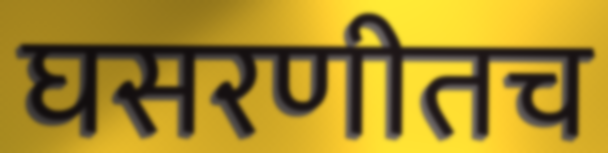
घसरणीतच